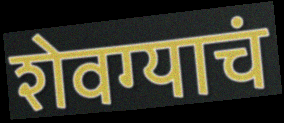
शेवग्याचं